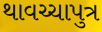
થાવચ્ચાપુત્ર